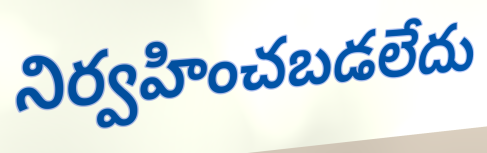
నిర్వహించబడలేదు